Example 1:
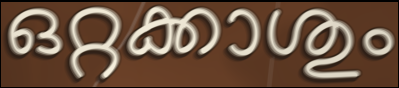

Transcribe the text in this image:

ഒറ്റക്കാശും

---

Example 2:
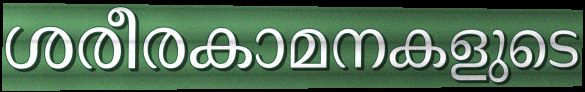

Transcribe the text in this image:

ശരീരകാമനകളുടെ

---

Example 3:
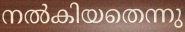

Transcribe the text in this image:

നൽകിയതെന്നു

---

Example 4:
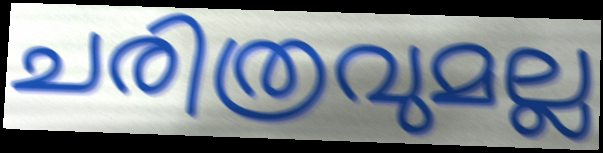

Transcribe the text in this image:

ചരിത്രവുമല്ല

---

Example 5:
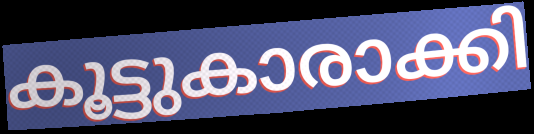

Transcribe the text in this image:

കൂട്ടുകാരാക്കി